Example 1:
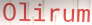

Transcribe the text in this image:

Olirum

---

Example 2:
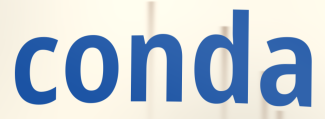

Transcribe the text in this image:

conda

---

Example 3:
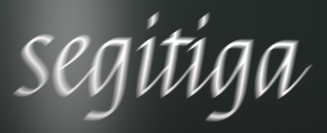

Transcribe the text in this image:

segitiga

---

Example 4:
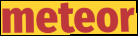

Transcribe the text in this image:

meteor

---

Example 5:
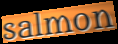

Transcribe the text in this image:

salmon